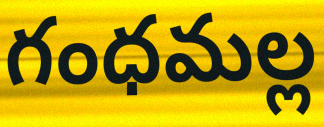
గంధమల్ల